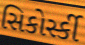
સિકોર્સ્કી